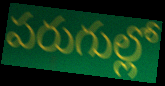
పరుగుల్లో